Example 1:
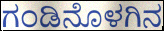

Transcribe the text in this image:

ಗಂಡಿನೊಳಗಿನ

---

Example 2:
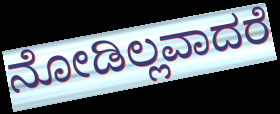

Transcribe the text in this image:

ನೋಡಿಲ್ಲವಾದರೆ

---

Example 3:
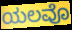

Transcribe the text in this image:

ಯಲವೊ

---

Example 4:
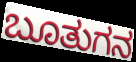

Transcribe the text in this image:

ಬೂತುಗನ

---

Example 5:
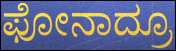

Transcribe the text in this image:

ಫೋನಾದ್ರೂ